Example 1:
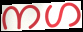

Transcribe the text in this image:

നഗ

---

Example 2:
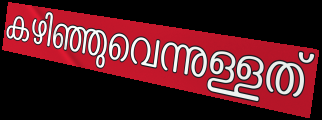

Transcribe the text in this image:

കഴിഞ്ഞുവെന്നുള്ളത്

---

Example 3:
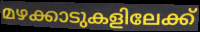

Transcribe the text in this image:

മഴക്കാടുകളിലേക്ക്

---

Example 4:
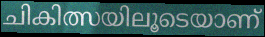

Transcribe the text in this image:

ചികിത്സയിലൂടെയാണ്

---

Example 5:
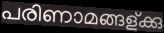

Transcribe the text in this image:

പരിണാമങ്ങള്ക്കു